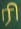
ரி